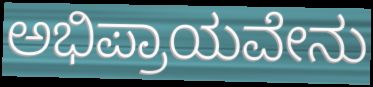
ಅಭಿಪ್ರಾಯವೇನು